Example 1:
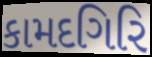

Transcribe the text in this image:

કામદગિરિ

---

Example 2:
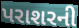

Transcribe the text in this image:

પરાશરની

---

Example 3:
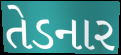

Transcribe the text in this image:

તેડનાર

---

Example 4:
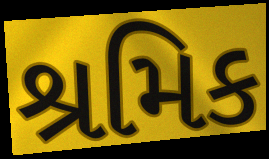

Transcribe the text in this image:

શ્રમિક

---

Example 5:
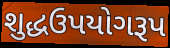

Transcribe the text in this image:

શુદ્ધઉપયોગરૂપ